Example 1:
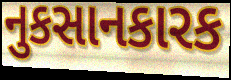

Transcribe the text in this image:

નુકસાનકારક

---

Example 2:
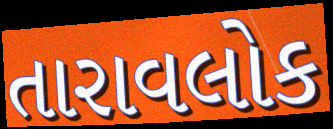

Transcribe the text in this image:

તારાવલોક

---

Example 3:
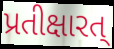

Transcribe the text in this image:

પ્રતીક્ષારત્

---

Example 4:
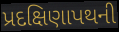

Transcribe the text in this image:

પ્રદક્ષિણાપથની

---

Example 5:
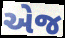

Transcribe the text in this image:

એજ